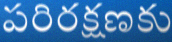
పరిరక్షణకు